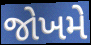
જોખમે